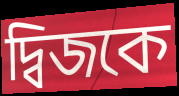
দ্বিজকে